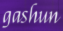
gashun